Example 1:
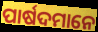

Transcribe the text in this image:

ପାର୍ଷଦମାନେ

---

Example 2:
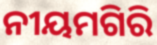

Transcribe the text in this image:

ନୀୟମଗିରି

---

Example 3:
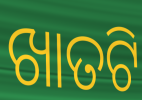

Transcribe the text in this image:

ଖାତଟି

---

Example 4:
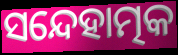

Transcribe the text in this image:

ସନ୍ଦେହାତ୍ମକ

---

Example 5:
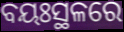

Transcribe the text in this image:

ବୟଃସ୍ଥଳରେ